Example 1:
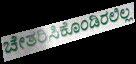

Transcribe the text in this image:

ಚೇತರಿಸಿಕೊಂಡಿರಲಿಲ್ಲ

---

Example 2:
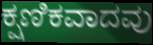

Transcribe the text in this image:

ಕ್ಷಣಿಕವಾದವು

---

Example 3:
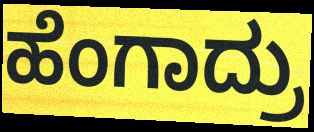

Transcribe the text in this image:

ಹೆಂಗಾದ್ರು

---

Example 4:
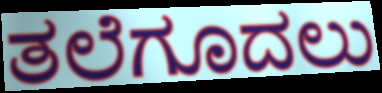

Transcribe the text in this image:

ತಲೆಗೂದಲು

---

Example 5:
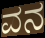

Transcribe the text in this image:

ವನ